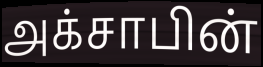
அக்சாபின்